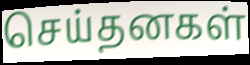
செய்தனகள்